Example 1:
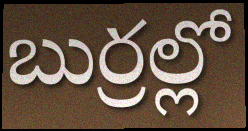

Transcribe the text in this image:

బుర్రల్లో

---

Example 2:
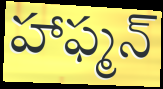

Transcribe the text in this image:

హాఫ్మన్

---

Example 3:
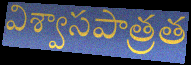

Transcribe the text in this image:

విశ్వాసపాత్రత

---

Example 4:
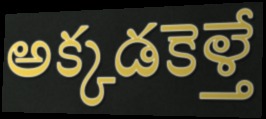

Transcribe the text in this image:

అక్కడకెళ్తే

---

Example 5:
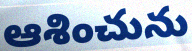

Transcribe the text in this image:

ఆశించును